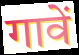
गावें